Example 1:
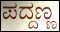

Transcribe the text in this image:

ಪದ್ದಣ್ಣ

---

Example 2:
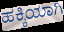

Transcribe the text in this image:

ಹಕ್ಕಿಯಾಗಿ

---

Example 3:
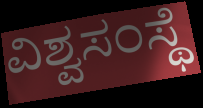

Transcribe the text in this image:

ವಿಶ್ವಸಂಸ್ಥೆ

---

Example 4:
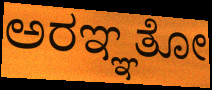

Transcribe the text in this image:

ಅರಞ್ಞತೋ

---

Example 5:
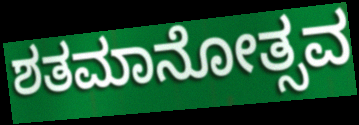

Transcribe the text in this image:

ಶತಮಾನೋತ್ಸವ